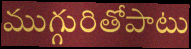
ముగ్గురితోపాటు